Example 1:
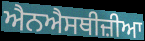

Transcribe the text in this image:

ਐਨਐਸਥੀਜ਼ੀਆ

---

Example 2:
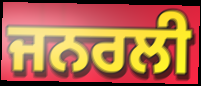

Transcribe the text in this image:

ਜਨਰਲੀ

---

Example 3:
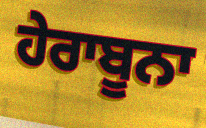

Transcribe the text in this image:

ਹੇਰਾਬੂਨਾ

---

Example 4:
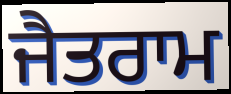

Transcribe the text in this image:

ਜੈਤਰਾਮ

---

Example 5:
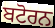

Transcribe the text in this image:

ਬਟੋਰਨ